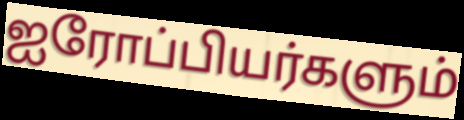
ஐரோப்பியர்களும்